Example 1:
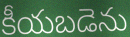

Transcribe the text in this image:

కీయబడెను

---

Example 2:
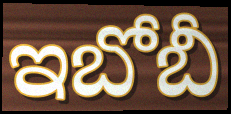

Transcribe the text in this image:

ఇబోబీ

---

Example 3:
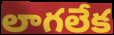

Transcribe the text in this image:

లాగలేక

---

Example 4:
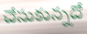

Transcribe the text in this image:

చేసుకున్నదో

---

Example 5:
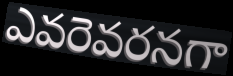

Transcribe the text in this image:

ఎవరెవరనగా